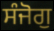
ਸੰਜੋਗੁ